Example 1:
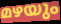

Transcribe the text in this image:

മഴയും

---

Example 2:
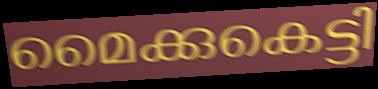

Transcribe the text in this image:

മൈക്കുകെട്ടി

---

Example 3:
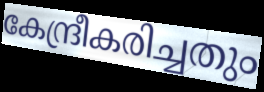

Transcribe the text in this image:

കേന്ദ്രീകരിച്ചതും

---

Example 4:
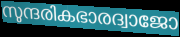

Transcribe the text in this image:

സുന്ദരികഭാരദ്വാജോ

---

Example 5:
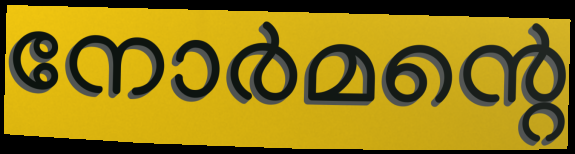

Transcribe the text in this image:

നോർമന്റെ